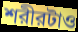
শরীরটাও